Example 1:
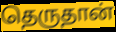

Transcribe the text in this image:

தெருதான்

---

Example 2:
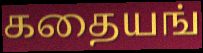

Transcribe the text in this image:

கதையங்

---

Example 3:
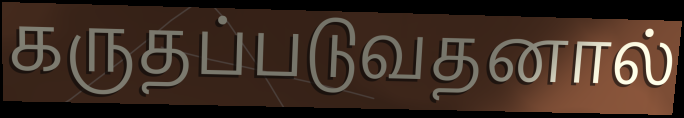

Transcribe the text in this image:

கருதப்படுவதனால்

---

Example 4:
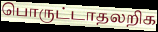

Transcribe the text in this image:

பொருட்டாதலறிக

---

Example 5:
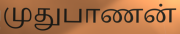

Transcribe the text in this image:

முதுபாணன்